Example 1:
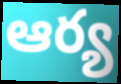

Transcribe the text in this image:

ఆర్య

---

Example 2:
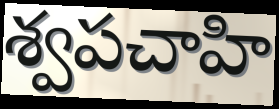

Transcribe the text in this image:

శ్వపచాహి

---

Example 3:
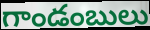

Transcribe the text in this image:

గాండంబులు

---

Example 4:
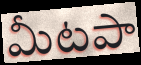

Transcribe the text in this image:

మీటపా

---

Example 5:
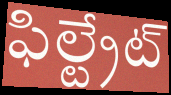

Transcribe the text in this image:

ఫిల్ట్రేట్